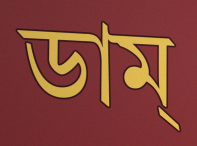
ডাম্